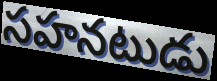
సహనటుడు